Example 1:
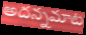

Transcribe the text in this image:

అదన్నమాట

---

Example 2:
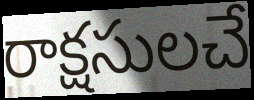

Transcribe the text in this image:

రాక్షసులచే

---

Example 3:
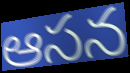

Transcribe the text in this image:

ఆసన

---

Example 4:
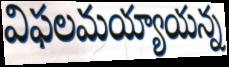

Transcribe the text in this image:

విఫలమయ్యాయన్న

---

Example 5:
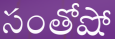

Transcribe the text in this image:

సంతోషో